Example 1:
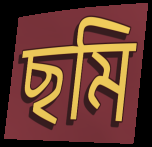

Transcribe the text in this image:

ছমি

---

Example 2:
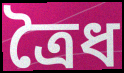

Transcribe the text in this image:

ত্রৈধ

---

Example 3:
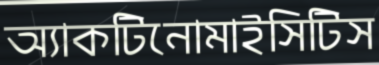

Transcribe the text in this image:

অ্যাকটিনোমাইসিটিস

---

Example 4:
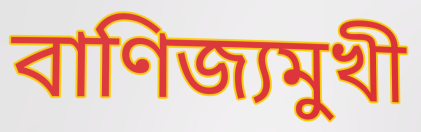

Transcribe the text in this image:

বাণিজ্যমুখী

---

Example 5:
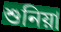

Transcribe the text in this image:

শুনিয়া